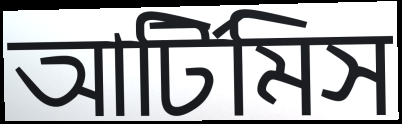
আর্টিমিস